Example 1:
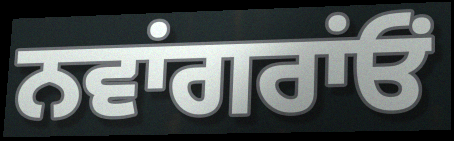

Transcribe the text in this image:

ਨਵਾਂਗਰਾਂਓਂ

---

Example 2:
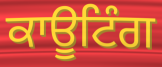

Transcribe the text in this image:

ਕਾਊਟਿੰਗ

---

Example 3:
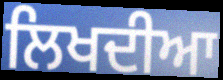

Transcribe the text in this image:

ਲਿਖਦੀਆ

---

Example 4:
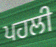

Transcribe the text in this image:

ਪਹਲੀ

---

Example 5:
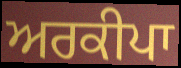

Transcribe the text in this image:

ਅਰਕੀਪਾ